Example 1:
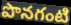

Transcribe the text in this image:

పొనగంటి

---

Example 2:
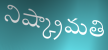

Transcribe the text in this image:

నిష్క్రామతి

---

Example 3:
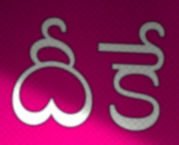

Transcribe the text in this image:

దీకే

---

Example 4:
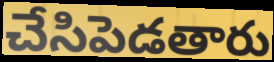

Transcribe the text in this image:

చేసిపెడతారు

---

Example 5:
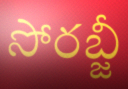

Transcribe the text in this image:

సోరబ్జీ